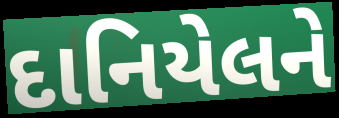
દાનિયેલને